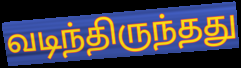
வடிந்திருந்தது